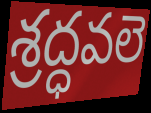
శ్రద్ధవలె